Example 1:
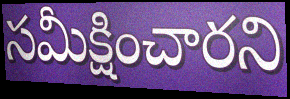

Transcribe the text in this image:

సమీక్షించారని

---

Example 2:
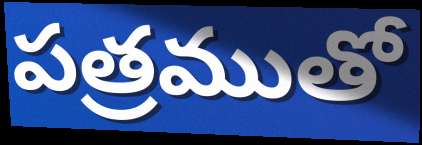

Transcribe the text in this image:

పత్రముతో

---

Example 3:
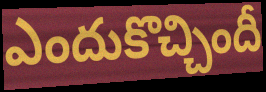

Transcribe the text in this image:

ఎందుకొచ్చిందీ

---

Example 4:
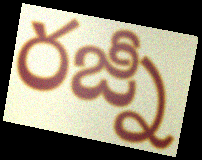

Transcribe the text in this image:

రజ్నీ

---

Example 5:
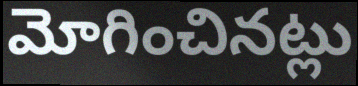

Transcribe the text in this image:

మోగించినట్లు